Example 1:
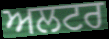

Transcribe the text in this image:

ਅਲਟਰ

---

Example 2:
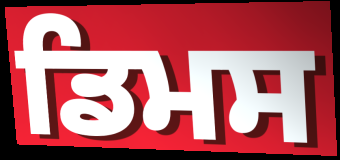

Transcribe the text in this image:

ਡਿਮਸ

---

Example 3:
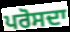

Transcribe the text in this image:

ਪਰੋਸਦਾ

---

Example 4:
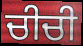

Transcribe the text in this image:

ਚੀਚੀ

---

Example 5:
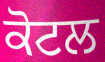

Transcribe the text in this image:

ਕੋਟਲ